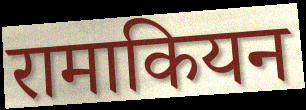
रामाकियन